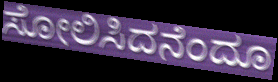
ಸೋಲಿಸಿದನೆಂದೂ